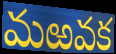
మఱవక